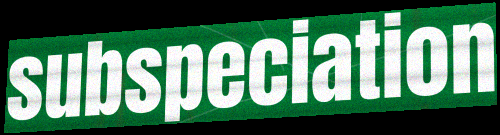
subspeciation